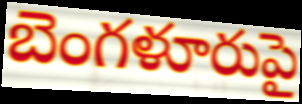
బెంగళూరుపై